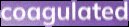
coagulated